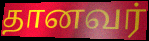
தானவர்